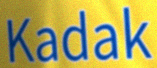
Kadak